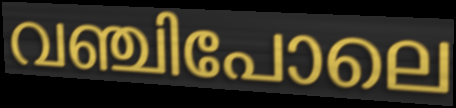
വഞ്ചിപോലെ